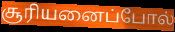
சூரியனைப்போல்